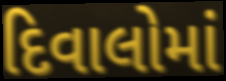
દિવાલોમાં